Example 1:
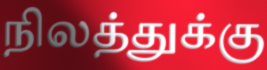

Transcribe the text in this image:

நிலத்துக்கு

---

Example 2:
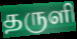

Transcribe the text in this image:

தருளி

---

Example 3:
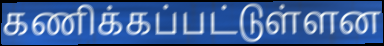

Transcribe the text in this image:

கணிக்கப்பட்டுள்ளன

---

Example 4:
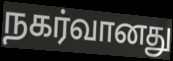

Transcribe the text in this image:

நகர்வானது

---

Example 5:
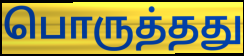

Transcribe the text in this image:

பொருத்தது